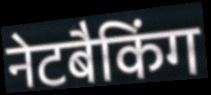
नेटबैकिंग